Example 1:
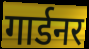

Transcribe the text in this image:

गार्डनर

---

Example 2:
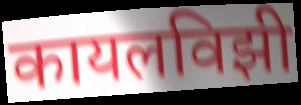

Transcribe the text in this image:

कायलविझी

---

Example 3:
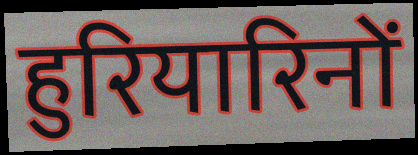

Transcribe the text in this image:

हुरियारिनों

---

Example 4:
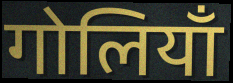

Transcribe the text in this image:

गोलियाँ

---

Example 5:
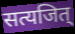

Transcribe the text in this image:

सत्यजित्